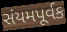
સંયમપૂર્વક